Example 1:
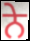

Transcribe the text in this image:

ਨੇ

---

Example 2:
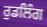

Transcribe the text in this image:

ਰੁਡਲਿੰਗ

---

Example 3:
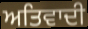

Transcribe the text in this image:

ਅਤਿਵਾਦੀ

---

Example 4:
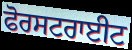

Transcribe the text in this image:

ਫੋਰਸਟਰਾਈਟ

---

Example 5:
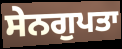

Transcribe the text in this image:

ਸੇਨਗੁਪਤਾ